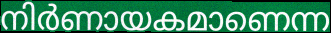
നിർണായകമാണെന്ന